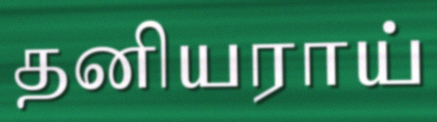
தனியராய்